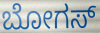
ಬೋಗಸ್